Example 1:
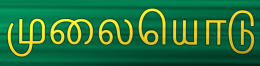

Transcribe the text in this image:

முலையொடு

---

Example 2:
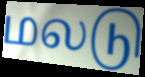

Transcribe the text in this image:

மலடு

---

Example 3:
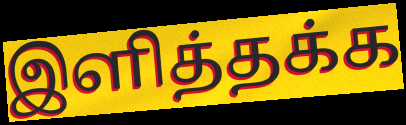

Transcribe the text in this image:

இளித்தக்க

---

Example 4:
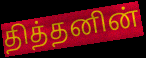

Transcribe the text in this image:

தித்தனின்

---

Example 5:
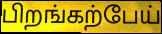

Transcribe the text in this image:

பிறங்கற்பேய்